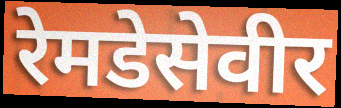
रेमडेसेवीर